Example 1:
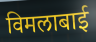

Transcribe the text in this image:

विमलाबाई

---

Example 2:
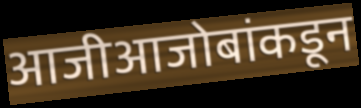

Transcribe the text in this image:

आजीआजोबांकडून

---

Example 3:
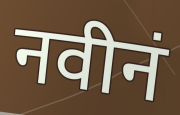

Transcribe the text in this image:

नवीनं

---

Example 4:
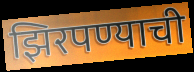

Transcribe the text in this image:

झिरपण्याची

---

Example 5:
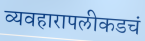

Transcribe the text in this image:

व्यवहारापलीकडचं